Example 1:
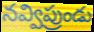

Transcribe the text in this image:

నవ్విప్రుండు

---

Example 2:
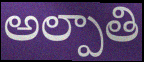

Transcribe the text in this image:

అల్పాతి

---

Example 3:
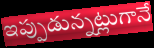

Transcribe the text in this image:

ఇప్పుడున్నట్లుగానే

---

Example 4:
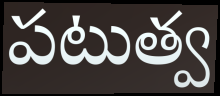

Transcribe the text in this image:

పటుత్వ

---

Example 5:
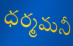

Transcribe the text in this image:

ధర్మమనీ